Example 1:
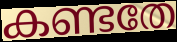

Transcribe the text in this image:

കണ്ടതേ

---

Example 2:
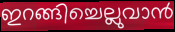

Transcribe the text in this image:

ഇറങ്ങിച്ചെല്ലുവാൻ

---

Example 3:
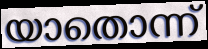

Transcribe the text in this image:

യാതൊന്ന്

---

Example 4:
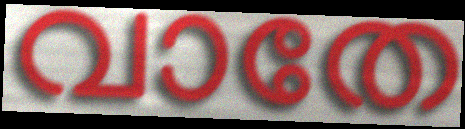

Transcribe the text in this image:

വാതേ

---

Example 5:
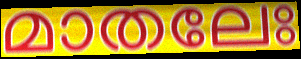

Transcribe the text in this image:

മാതലേഃ